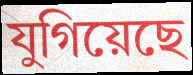
যুগিয়েছে